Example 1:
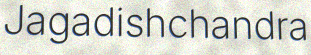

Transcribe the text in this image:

Jagadishchandra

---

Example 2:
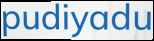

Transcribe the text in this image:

pudiyadu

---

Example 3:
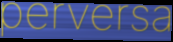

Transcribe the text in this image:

perversa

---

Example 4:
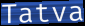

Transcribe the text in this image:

Tatva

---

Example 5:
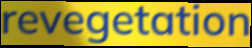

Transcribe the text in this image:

revegetation